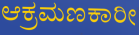
ಆಕ್ರಮಣಕಾರೀ